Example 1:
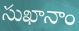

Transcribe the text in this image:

సుఖానాం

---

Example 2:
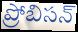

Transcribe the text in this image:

ప్రోబిసన్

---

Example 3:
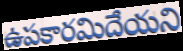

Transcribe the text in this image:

ఉపకారమిదేయని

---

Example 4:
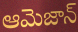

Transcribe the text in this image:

ఆమెజాన్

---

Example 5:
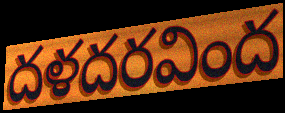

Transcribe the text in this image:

దళదరవింద